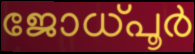
ജോധ്പൂർ